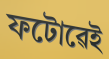
ফটোৱেই